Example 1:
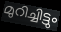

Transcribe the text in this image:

മുറിച്ചിട്ടും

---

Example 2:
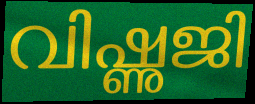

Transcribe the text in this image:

വിഷ്ണുജി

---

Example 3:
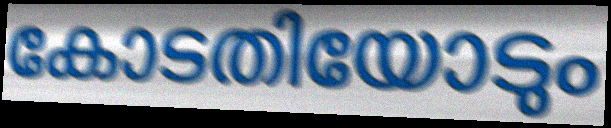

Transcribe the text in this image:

കോടതിയോടും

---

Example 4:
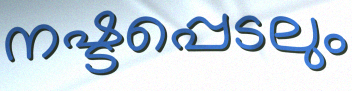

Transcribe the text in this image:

നഷ്ടപ്പെടലും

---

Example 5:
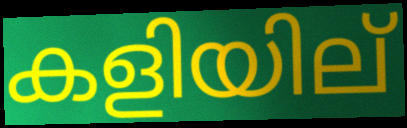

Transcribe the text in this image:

കളിയില്